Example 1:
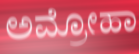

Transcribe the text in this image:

ಅಮ್ರೋಹಾ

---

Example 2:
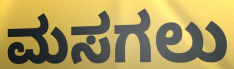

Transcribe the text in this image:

ಮಸಗಲು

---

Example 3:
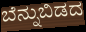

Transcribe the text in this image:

ಬೆನ್ನುಬಿಡದ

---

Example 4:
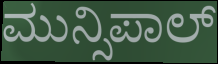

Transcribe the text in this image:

ಮುನ್ಸಿಪಾಲ್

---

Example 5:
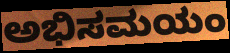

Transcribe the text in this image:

ಅಭಿಸಮಯಂ